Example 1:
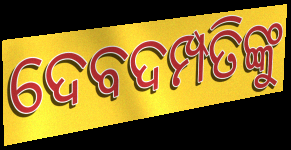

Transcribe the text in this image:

ଦେବଦମ୍ପତିଙ୍କୁ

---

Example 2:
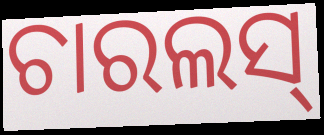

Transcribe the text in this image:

ଚାରଲସ୍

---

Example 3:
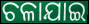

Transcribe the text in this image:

ଚଳାଯାଇ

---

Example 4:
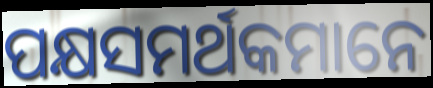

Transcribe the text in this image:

ପକ୍ଷସମର୍ଥକମାନେ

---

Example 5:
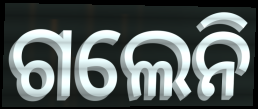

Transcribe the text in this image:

ଗଲେନି